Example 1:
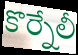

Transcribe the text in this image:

కొర్నేలీ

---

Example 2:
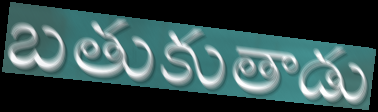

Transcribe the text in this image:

బతుకుతాడు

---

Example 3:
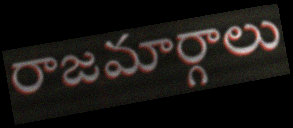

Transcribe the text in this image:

రాజమార్గాలు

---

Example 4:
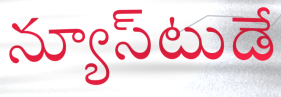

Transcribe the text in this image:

న్యూస్‌టుడే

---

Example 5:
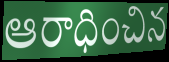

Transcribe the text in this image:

ఆరాధించిన